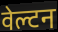
वेल्टन